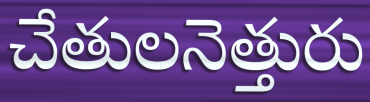
చేతులనెత్తురు